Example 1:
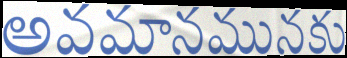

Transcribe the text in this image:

అవమానమునకు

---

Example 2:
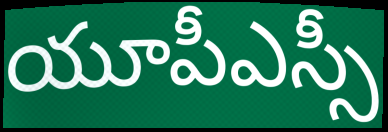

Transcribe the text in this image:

యూపీఎస్సీ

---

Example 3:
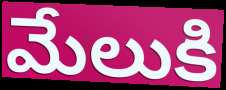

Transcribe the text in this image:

మేలుకి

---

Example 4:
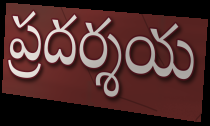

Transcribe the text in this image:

ప్రదర్శయ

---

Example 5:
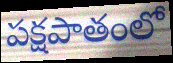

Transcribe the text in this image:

పక్షపాతంలో